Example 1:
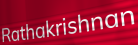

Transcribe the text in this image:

Rathakrishnan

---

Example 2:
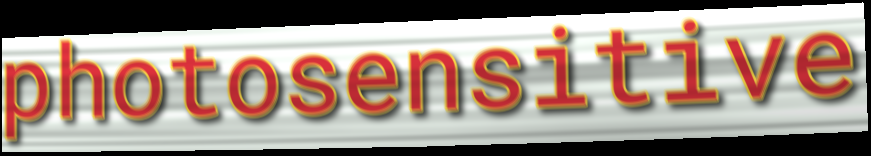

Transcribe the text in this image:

photosensitive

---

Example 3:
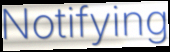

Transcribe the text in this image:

Notifying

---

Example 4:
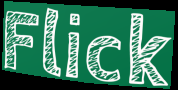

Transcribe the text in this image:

Flick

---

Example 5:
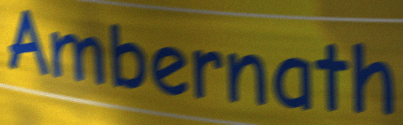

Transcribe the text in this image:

Ambernath